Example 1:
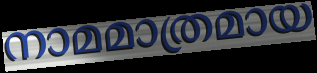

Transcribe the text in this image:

നാമമാത്രമായ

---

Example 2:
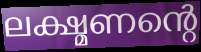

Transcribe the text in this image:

ലക്ഷ്മണന്റെ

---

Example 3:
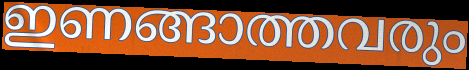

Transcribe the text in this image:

ഇണങ്ങാത്തവരും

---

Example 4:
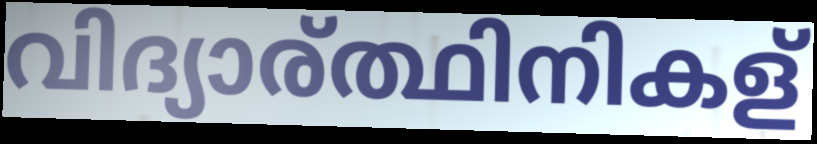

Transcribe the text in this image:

വിദ്യാര്ത്ഥിനികള്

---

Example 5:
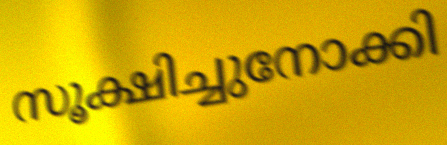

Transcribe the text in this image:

സൂക്ഷിച്ചുനോക്കി